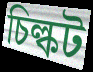
চিল্কট